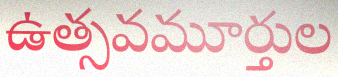
ఉత్సవమూర్తుల